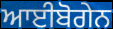
ਆਈਬੋਗੇਨ